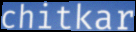
chitkar